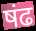
षंढ